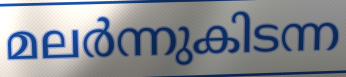
മലർന്നുകിടന്ന